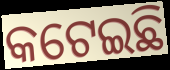
କଟେଇଛି